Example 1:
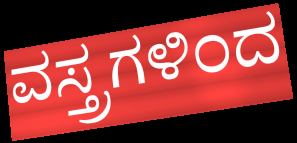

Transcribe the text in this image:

ವಸ್ತ್ರಗಳಿಂದ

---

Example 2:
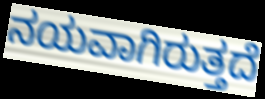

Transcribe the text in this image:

ನಯವಾಗಿರುತ್ತದೆ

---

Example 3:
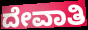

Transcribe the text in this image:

ದೇವಾತಿ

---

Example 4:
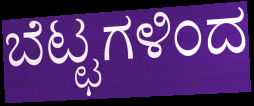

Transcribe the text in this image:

ಬೆಟ್ಟಗಳಿಂದ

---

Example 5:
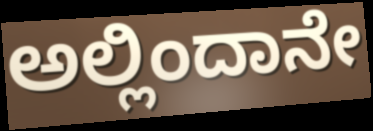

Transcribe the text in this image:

ಅಲ್ಲಿಂದಾನೇ